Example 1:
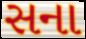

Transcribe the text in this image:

સના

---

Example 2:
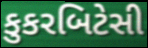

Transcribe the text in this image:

કુકરબિટેસી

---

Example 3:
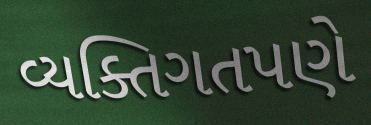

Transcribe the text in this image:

વ્યક્તિગતપણે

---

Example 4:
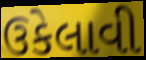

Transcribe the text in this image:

ઉકેલાવી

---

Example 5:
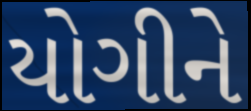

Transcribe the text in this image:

યોગીને